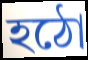
হঠো